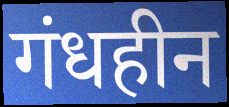
गंधहीन